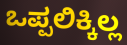
ಒಪ್ಪಲಿಕ್ಕಿಲ್ಲ